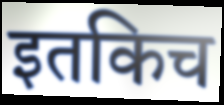
इतकिच